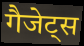
गैजेट्स